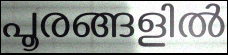
പൂരങ്ങളിൽ